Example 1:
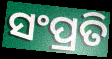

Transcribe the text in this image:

ସଂପ୍ରତି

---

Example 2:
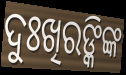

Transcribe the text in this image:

ଦୁଃଖିରଙ୍କିଙ୍କ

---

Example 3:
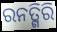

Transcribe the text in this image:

ରନତ୍ଗିରି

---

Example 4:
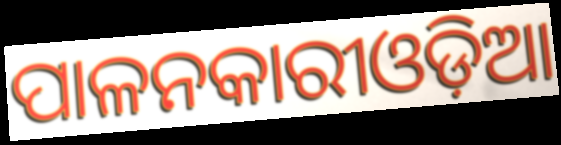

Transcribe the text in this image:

ପାଳନକାରୀଓଡ଼ିଆ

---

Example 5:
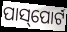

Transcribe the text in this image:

ପାସ୍‌ପୋର୍ଟ